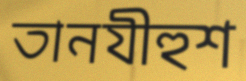
তানযীহুশ